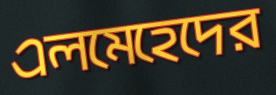
এলমেহেদের